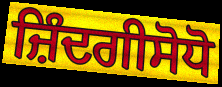
ਜ਼ਿੰਦਗੀਸੋਧੋ